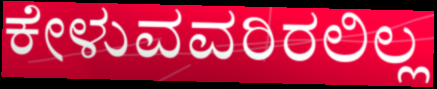
ಕೇಳುವವರಿರಲಿಲ್ಲ